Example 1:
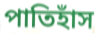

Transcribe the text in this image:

পাতিহাঁস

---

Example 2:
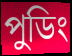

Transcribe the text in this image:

পুডিং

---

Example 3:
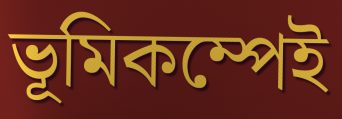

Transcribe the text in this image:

ভূমিকম্পেই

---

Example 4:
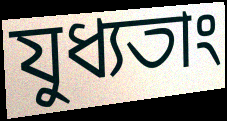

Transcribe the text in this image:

যুধ্যতাং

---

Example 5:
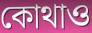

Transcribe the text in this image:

কোথাও